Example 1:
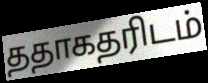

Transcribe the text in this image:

ததாகதரிடம்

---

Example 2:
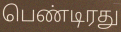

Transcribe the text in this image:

பெண்டிரது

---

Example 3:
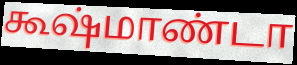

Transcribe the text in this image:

கூஷ்மாண்டா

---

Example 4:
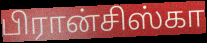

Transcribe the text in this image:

பிரான்சிஸ்கா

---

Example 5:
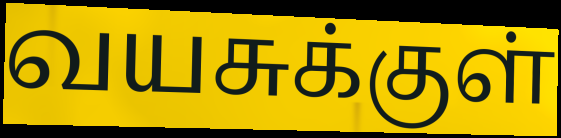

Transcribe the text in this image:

வயசுக்குள்